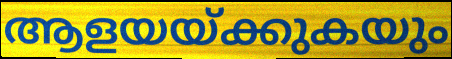
ആളയയ്ക്കുകയും